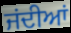
ਜਂਦੀਆਂ